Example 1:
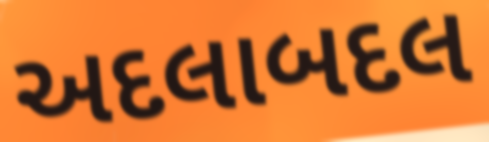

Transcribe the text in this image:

અદલાબદલ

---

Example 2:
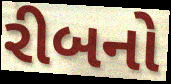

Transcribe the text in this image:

રીબનો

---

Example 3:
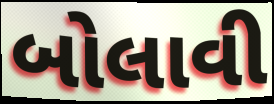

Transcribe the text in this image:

બોલાવી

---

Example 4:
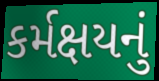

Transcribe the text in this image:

કર્મક્ષયનું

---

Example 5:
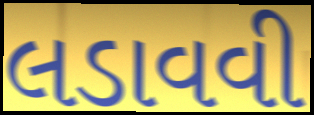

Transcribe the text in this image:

લડાવવી